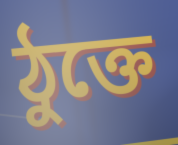
ঠুক্তে